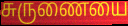
சுருணையை